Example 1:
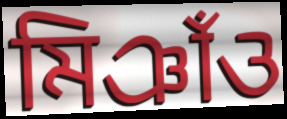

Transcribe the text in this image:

মিঞাঁও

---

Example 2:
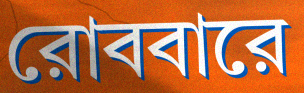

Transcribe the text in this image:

রোববারে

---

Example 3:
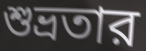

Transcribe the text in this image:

শুভ্রতার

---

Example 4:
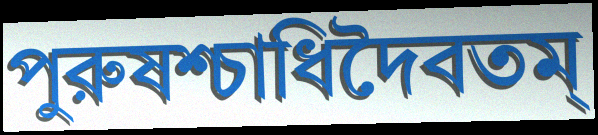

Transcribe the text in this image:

পুরুষশ্চাধিদৈবতম্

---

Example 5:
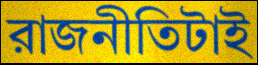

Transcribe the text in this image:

রাজনীতিটাই